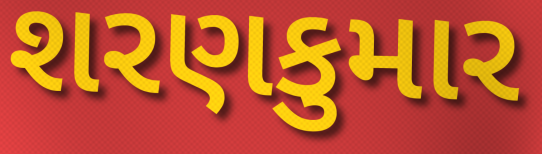
શરણકુમાર